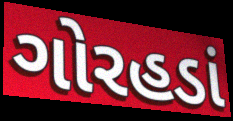
ગોરહડાં